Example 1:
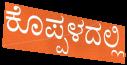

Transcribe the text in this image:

ಕೊಪ್ಪಳದಲ್ಲಿ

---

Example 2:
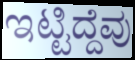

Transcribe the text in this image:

ಇಟ್ಟಿದ್ದೆವು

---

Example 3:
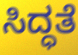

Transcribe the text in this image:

ಸಿದ್ಧತೆ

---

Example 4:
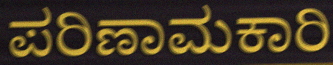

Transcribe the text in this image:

ಪರಿಣಾಮಕಾರಿ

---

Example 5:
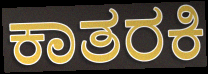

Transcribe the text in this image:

ಕಾತರಕಿ